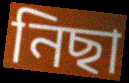
নিছা